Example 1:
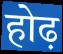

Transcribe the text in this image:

होढ़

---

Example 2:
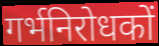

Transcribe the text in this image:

गर्भनिरोधकों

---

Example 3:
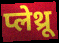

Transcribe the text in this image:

प्लेथ्रू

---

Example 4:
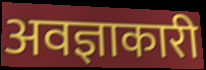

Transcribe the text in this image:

अवज्ञाकारी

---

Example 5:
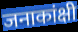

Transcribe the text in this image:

जनाकांक्षी